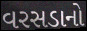
વરસડાનો